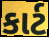
કાર્ટ